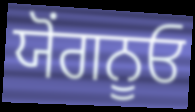
ਯੋਂਗਨੂਓ